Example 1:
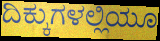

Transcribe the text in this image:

ದಿಕ್ಕುಗಳಲ್ಲಿಯೂ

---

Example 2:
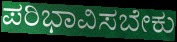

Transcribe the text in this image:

ಪರಿಭಾವಿಸಬೇಕು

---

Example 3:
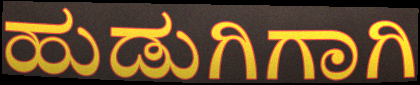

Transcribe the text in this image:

ಹುಡುಗಿಗಾಗಿ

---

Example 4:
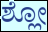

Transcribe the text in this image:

ಶ್ಲೋ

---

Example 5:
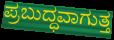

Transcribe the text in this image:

ಪ್ರಬುದ್ಧವಾಗುತ್ತ